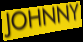
JOHNNY